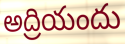
అద్రియందు